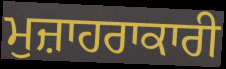
ਮੁਜ਼ਾਹਰਾਕਾਰੀ